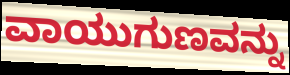
ವಾಯುಗುಣವನ್ನು